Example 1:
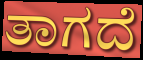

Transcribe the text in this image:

ತಾಗದೆ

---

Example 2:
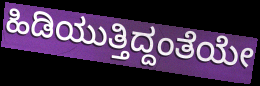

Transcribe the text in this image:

ಹಿಡಿಯುತ್ತಿದ್ದಂತೆಯೇ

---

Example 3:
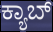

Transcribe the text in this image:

ಕ್ಯಾಬ್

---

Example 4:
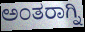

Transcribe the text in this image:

ಅಂತರಾಗ್ನಿ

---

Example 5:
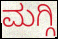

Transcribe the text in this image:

ಮಗ್ಗಿ